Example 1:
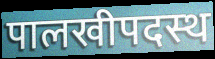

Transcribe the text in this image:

पालखीपदस्थ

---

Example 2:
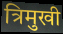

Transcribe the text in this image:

त्रिमुखी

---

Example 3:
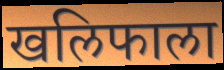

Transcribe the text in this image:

खलिफाला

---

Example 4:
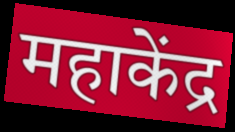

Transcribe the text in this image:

महाकेंद्र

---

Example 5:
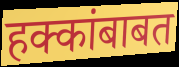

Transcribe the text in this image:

हक्कांबाबत